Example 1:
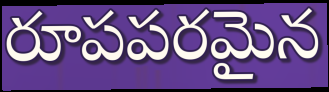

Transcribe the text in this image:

రూపపరమైన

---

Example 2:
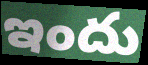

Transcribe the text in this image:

ఇందు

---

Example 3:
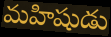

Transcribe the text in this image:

మహిషుడు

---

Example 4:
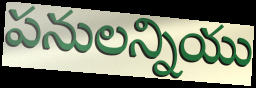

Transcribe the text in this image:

పనులన్నియు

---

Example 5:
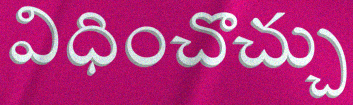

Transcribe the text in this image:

విధించొచ్చు